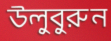
উলুবুরুন